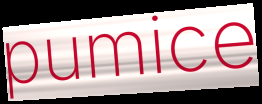
pumice